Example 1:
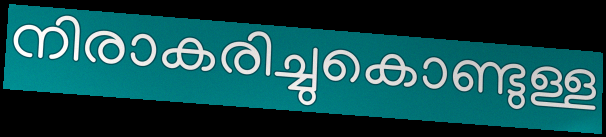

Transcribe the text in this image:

നിരാകരിച്ചുകൊണ്ടുള്ള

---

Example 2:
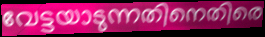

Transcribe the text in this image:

വേട്ടയാടുന്നതിനെതിരെ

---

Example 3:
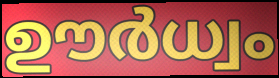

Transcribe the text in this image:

ഊർധ്വം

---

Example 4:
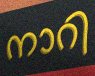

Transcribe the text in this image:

നാറി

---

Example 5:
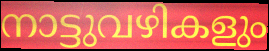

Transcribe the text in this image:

നാട്ടുവഴികളും